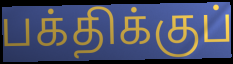
பக்திக்குப்